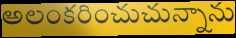
అలంకరించుచున్నాను